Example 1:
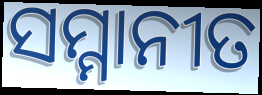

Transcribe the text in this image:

ସମ୍ମାନୀତ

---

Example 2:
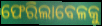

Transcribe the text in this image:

ଫେରିଲାବେଳକୁ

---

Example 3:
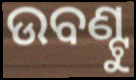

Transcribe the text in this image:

ଉବଣ୍ଟୁ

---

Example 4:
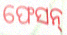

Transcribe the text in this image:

ଫେସନ୍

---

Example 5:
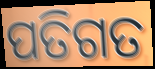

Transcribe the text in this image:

ପତିଗତ